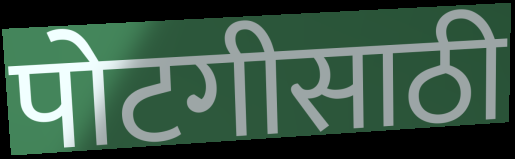
पोटगीसाठी